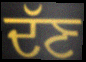
ਦੱਣ